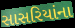
સાસરિયાંના